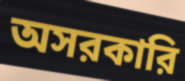
অসরকারি